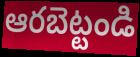
ఆరబెట్టండి